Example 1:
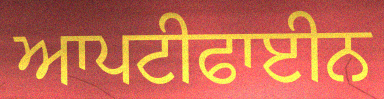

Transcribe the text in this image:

ਆਪਟੀਫਾਈਨ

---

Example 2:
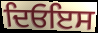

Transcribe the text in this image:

ਦਿਓਇਸ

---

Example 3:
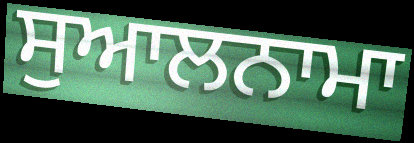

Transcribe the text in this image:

ਸੁਆਲਨਾਮਾ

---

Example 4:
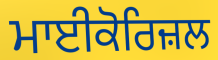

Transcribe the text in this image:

ਮਾਈਕੋਰਿਜ਼ਲ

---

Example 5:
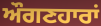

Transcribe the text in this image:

ਔਗਣਹਾਰਾਂ